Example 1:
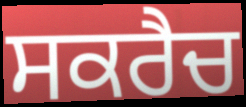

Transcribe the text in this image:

ਸਕਰੈਚ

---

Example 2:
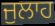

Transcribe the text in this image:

ਜੁਲਾਹ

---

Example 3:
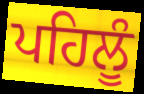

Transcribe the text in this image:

ਪਹਿਲੂੰ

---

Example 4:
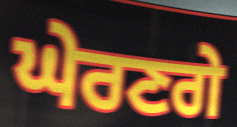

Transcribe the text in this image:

ਘੇਰਣਗੇ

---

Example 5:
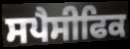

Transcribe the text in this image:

ਸਪੈਸੀਫਿਕ